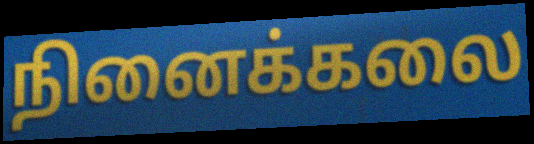
நினைக்கலை